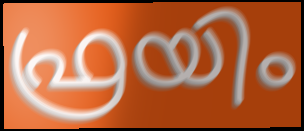
ഫ്രയിം